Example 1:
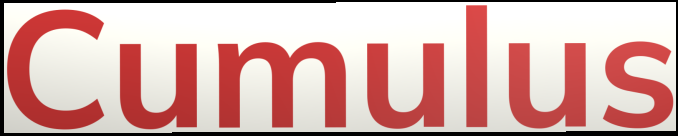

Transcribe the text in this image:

Cumulus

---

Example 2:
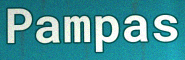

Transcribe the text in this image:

Pampas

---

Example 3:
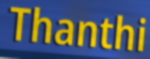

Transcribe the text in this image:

Thanthi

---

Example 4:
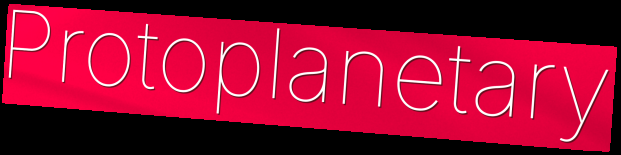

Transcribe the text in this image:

Protoplanetary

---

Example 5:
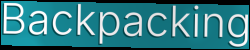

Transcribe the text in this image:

Backpacking